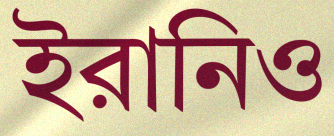
ইরানিও